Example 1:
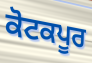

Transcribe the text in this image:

ਕੋਟਕਪੂਰ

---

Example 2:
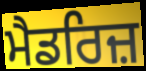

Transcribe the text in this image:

ਮੈਡਰਿਜ਼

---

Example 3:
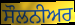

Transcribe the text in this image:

ਸੌਲਨੀਅਰ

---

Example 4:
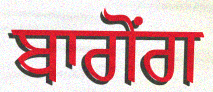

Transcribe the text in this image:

ਬਾਗੋਂਗ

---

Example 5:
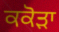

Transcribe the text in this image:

ਕਕੋੜਾ